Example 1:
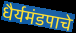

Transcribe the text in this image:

धैर्यमंडपाचे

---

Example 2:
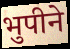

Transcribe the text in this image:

भुपीने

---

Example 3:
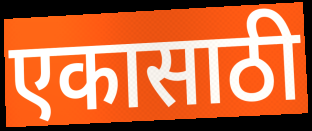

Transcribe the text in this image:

एकासाठी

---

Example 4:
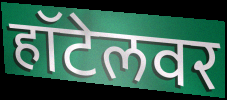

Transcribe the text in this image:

हॉटेलवर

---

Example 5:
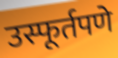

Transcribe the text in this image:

उस्फूर्तपणे